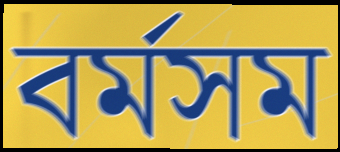
বর্মসম